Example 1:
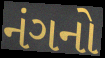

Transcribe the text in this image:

નંગનો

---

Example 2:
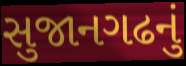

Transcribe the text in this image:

સુજાનગઢનું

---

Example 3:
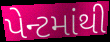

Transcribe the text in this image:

પેન્ટમાંથી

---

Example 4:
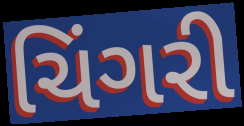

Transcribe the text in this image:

ચિંગરી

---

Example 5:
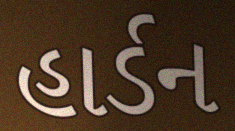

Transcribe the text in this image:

હાર્ડન